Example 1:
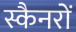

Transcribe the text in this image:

स्कैनरों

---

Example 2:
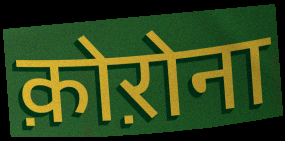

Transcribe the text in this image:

क़ोऱोना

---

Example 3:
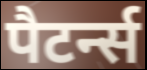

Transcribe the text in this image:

पैटर्न्स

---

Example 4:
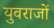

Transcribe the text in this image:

युवराजों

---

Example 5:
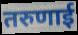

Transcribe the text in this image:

तरुणाई